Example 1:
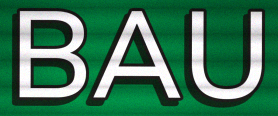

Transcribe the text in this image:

BAU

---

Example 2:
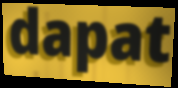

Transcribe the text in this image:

dapat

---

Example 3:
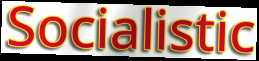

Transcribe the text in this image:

Socialistic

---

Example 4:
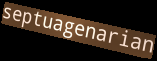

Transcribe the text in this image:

septuagenarian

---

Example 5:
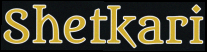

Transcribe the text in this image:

Shetkari